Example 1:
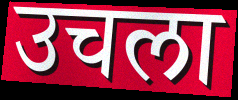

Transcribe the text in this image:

उचला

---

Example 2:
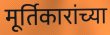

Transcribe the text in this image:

मूर्तिकारांच्या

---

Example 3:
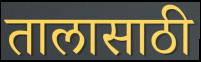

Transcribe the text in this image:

तालासाठी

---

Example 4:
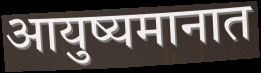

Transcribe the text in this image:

आयुष्यमानात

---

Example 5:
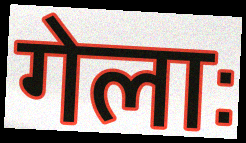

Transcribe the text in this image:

गेलाः